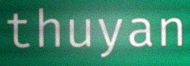
thuyan